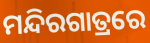
ମନ୍ଦିରଗାତ୍ରରେ